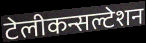
टेलीकन्सल्टेशन